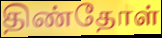
திண்தோள்